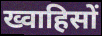
ख्वाहिसों